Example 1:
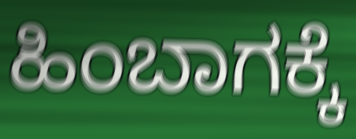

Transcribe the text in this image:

ಹಿಂಬಾಗಕ್ಕೆ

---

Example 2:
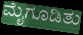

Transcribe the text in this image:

ಮೈಗೂಡಿತು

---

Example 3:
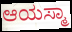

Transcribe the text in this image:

ಆಯಸ್ಮಾ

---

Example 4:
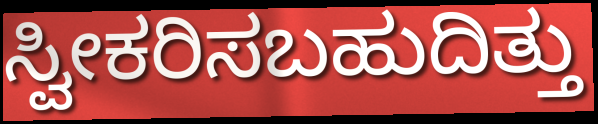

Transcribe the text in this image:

ಸ್ವೀಕರಿಸಬಹುದಿತ್ತು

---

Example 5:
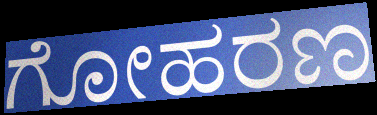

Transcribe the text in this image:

ಗೋಹರಣ